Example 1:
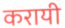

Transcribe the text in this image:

करायी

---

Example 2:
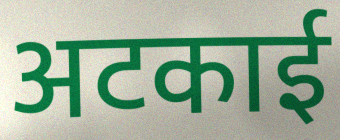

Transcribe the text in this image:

अटकाई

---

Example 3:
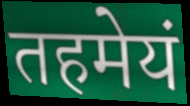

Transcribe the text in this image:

तहमेयं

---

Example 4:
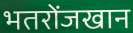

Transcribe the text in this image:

भतरोंजखान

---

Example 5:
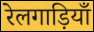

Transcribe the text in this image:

रेलगाड़ियाँ